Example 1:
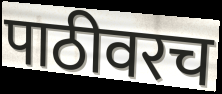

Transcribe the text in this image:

पाठीवरच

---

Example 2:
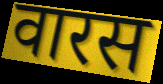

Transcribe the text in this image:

वारस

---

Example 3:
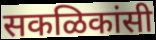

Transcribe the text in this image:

सकळिकांसी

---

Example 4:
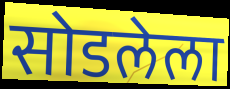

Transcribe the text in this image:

सोडलेला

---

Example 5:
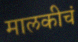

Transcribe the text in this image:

मालकीचं